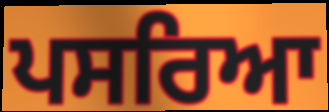
ਪਸਰਿਆ